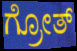
ಗ್ರೋತ್